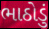
ભાઠોડું